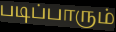
படிப்பாரும்